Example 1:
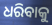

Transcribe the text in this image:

ଧରିବାକୁ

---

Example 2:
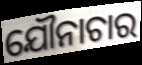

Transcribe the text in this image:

ଯୌନାଚାର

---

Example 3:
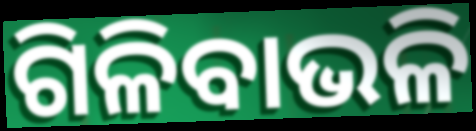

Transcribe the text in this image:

ଗିଳିବାଭଳି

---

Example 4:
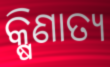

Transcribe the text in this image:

କ୍ଷିଣାତ୍ୟ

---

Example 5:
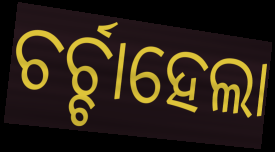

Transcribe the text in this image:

ଚର୍ଚ୍ଚାହେଲା